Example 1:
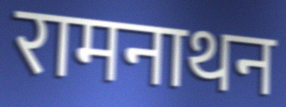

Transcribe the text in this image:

रामनाथन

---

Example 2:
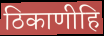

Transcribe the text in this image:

ठिकाणीहि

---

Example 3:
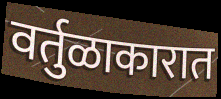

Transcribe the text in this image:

वर्तुळाकारात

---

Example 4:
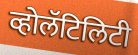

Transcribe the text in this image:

व्होलॅटिलिटी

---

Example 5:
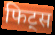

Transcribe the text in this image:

फिट्स